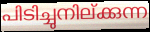
പിടിച്ചുനില്ക്കുന്ന